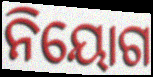
ନିୟୋଗ